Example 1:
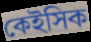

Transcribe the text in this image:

কেইসিক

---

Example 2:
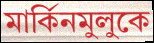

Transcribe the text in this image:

মার্কিনমুলুকে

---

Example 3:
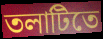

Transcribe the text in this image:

তলাটিতে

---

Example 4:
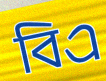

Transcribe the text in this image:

বিএ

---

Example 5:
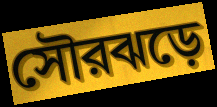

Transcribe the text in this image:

সৌরঝড়ে